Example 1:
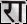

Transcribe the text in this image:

रा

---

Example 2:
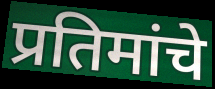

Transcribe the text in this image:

प्रतिमांचे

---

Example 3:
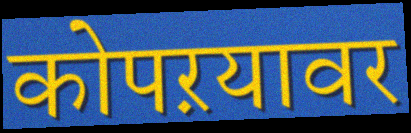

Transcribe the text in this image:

कोपऱयावर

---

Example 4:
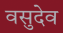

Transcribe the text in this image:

वसुदेव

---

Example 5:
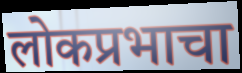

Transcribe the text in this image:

लोकप्रभाचा